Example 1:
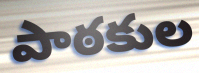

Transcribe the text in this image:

పాఠకుల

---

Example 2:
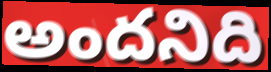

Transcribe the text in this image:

అందనిది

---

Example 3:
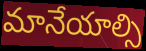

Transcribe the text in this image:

మానేయాల్సి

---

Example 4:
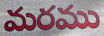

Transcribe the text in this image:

మరము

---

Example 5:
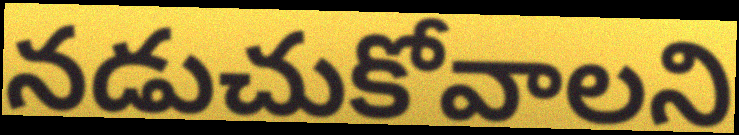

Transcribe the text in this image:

నడుచుకోవాలని